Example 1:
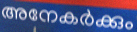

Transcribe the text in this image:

അനേകർക്കും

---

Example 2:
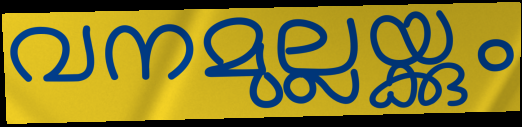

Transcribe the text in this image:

വനമുല്ലയ്ക്കും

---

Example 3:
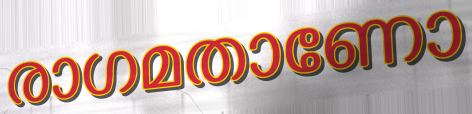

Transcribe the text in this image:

രാഗമതാണോ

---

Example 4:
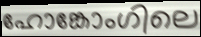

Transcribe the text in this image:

ഹോങ്കോംഗിലെ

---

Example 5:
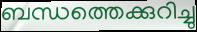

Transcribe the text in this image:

ബന്ധത്തെക്കുറിച്ചു